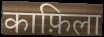
काफ़िला